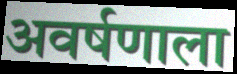
अवर्षणाला